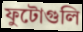
ফুটোগুলি